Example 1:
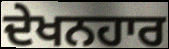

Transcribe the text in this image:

ਦੇਖਨਹਾਰ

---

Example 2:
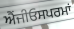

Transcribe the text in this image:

ਐਂਜੀਓਸਪਰਮਾਂ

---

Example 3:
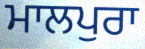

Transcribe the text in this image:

ਮਾਲਪੁਰਾ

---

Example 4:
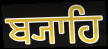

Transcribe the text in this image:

ਬ੍ਯਾਹਿ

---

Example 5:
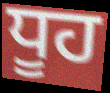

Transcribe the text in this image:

ਧੂਹ